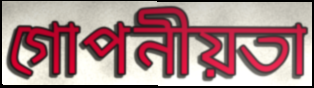
গোপনীয়তা